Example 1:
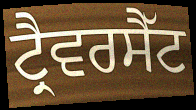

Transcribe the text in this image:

ਟ੍ਰੈਵਰਸੈੱਟ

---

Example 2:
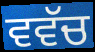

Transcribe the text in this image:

ਵਵੱਚ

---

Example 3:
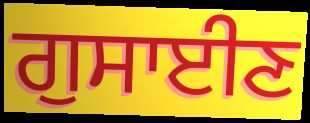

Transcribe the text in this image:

ਗੁਸਾਈਣ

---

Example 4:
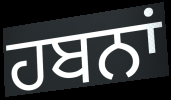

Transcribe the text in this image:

ਹਬਨਾਂ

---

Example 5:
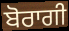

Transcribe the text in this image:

ਬੋਰਾਗੀ